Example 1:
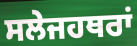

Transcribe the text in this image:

ਸਲੇਜਹਥਰਾਂ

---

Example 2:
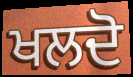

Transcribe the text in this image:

ਖਲਦੋ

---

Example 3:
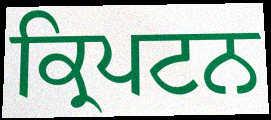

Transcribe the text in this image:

ਕ੍ਰਿਪਟਨ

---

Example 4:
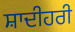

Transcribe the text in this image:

ਸ਼ਾਦੀਹਰੀ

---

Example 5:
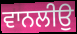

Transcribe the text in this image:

ਵਾਨਲੀਉ